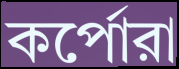
কর্পোরা